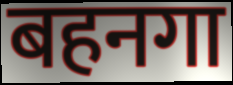
बहनगा